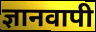
ज्ञानवापी